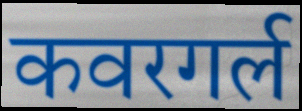
कवरगर्ल